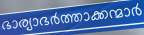
ഭാര്യാഭർത്താക്കന്മാർ